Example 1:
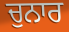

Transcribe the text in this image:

ਚੁਨਾਰ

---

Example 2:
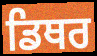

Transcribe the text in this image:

ਡਿਥਰ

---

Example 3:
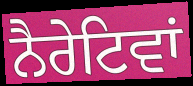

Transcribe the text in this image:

ਨੈਰੇਟਿਵਾਂ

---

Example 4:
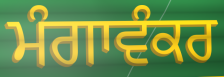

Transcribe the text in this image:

ਮੰਗਾਵੰਕਰ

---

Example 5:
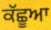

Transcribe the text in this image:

ਕੱਛੂਆ